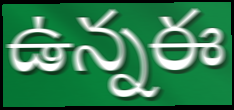
ఉన్నఈ